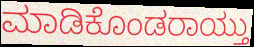
ಮಾಡಿಕೊಂಡರಾಯ್ತು